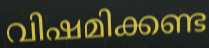
വിഷമിക്കണ്ട